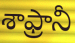
శాఫ్రానీ